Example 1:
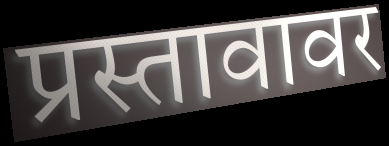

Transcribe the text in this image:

प्रस्तावावर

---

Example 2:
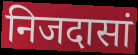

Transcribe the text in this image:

निजदासां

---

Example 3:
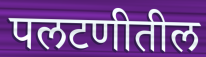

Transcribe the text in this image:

पलटणीतील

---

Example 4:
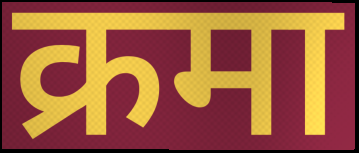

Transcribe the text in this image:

क्रमा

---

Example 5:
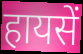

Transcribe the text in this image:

हायसें